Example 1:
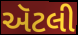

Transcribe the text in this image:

ઍટલી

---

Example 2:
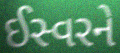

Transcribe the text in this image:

ઈસ્વરને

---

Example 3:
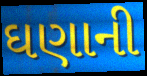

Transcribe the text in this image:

ઘણાની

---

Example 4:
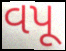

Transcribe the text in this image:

વપૂ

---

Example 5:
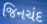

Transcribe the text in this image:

જિનચંદ